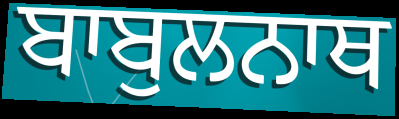
ਬਾਬੁਲਨਾਥ